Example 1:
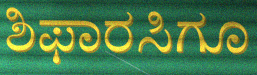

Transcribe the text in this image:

ಶಿಫಾರಸಿಗೂ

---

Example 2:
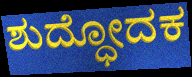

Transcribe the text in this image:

ಶುದ್ಧೋದಕ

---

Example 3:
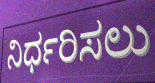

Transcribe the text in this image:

ನಿರ್ಧರಿಸಲು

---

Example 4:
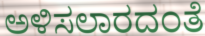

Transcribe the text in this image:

ಅಳಿಸಲಾರದಂತೆ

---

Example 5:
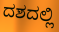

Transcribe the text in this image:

ದಶದಲ್ಲಿ